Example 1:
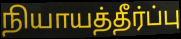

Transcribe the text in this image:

நியாயத்தீர்ப்பு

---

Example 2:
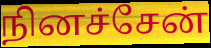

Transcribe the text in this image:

நினச்சேன்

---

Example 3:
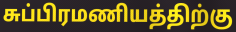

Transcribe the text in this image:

சுப்பிரமணியத்திற்கு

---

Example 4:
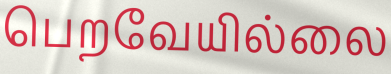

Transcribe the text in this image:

பெறவேயில்லை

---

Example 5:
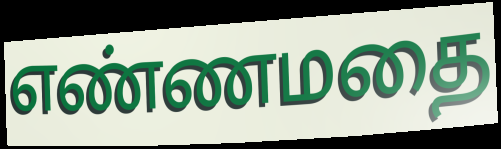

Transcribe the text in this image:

எண்ணமதை